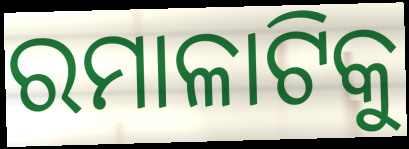
ରମାଳାଟିକୁ